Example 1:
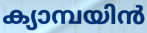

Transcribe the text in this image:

ക്യാമ്പയിൻ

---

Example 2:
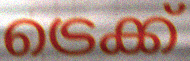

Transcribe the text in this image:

ട്രെക്ക്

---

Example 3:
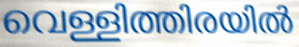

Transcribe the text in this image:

വെള്ളിത്തിരയിൽ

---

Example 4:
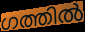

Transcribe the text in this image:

ഗത്തിൽ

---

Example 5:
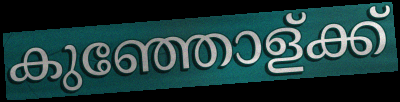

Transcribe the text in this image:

കുഞ്ഞോള്ക്ക്